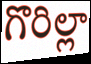
గొరిల్లా